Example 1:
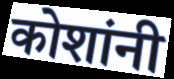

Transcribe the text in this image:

कोशांनी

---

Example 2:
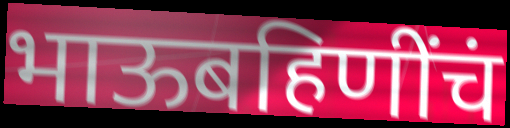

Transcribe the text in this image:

भाऊबहिणींचं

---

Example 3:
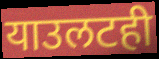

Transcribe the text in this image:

याउलटही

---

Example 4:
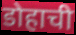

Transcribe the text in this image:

डोहाची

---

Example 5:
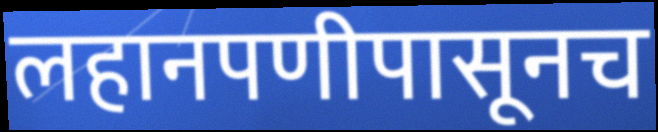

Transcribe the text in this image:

लहानपणीपासूनच